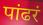
पांढरं